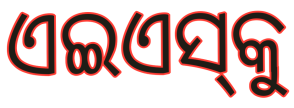
ଏଇଏସ୍‌କୁ